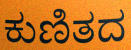
ಕುಣಿತದ